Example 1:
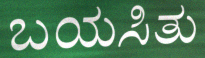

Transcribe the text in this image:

ಬಯಸಿತು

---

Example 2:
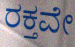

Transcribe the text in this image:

ರಕ್ತವೇ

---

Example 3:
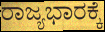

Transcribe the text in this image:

ರಾಜ್ಯಭಾರಕ್ಕೆ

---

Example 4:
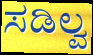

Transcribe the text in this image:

ಸಡಿಲ್ವ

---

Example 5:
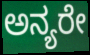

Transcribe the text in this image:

ಅನ್ಯರೇ